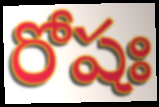
రోషః